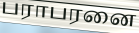
பராபரனை